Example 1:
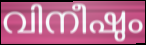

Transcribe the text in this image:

വിനീഷും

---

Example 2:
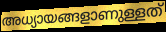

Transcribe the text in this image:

അധ്യായങ്ങളാണുള്ളത്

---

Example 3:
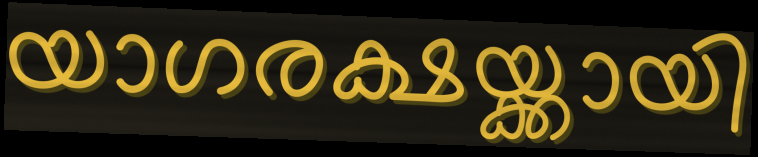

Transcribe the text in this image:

യാഗരക്ഷയ്ക്കായി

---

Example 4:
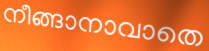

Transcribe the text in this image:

നീങ്ങാനാവാതെ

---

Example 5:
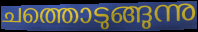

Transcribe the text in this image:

ചത്തൊടുങ്ങുന്നു